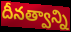
దీనత్వాన్ని